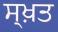
ਸ੍ਖ਼ਤ